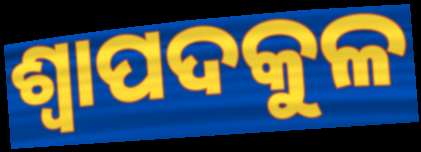
ଶ୍ୱାପଦକୁଳ